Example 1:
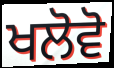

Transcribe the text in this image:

ਖਲੋਵੋ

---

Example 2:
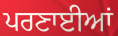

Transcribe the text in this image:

ਪਰਣਾਈਆਂ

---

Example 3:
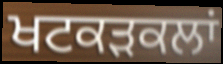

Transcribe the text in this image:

ਖਟਕੜਕਲਾਂ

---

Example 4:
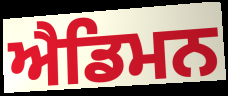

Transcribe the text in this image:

ਐਡਿਮਨ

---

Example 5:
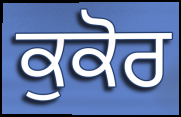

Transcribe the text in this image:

ਕੁਕੋਰ